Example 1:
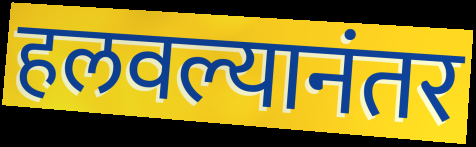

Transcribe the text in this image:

हलवल्यानंतर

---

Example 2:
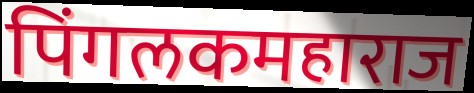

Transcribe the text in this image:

पिंगलकमहाराज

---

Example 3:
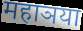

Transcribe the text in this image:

महाञया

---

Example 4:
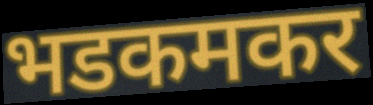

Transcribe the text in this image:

भडकमकर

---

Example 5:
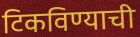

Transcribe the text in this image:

टिकविण्याची